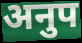
अनुप